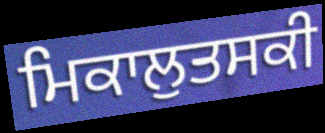
ਮਿਕਾਲੁਤਸਕੀ